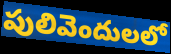
పులివెందులలో